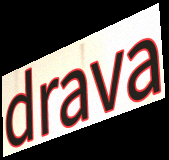
drava